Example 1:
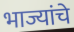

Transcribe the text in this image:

भाज्यांचे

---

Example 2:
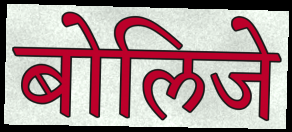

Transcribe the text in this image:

बोलिजे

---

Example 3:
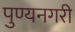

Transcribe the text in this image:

पुण्यनगरी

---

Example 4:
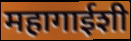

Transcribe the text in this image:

महागाईशी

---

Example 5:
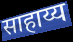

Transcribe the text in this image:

साहाय्य